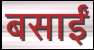
बसाईं